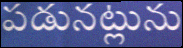
పడునట్లును